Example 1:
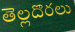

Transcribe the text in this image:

తెల్లదొరలు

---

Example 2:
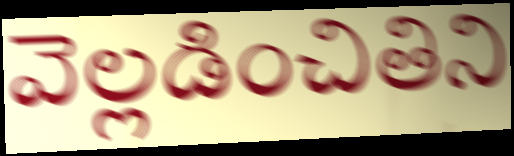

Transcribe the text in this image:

వెల్లడించితిని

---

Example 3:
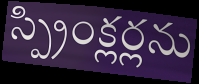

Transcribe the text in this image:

స్ప్రింక్లర్లను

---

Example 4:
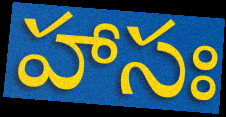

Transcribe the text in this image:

హాసః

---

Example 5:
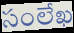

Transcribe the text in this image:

సంలేఖ